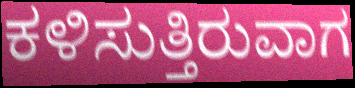
ಕಳಿಸುತ್ತಿರುವಾಗ